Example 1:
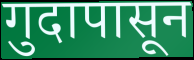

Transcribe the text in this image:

गुदापासून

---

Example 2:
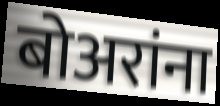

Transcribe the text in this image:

बोअरांना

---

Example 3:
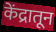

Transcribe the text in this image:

केंद्रातून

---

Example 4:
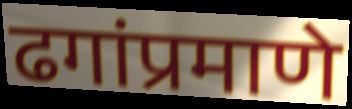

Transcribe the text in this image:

ढगांप्रमाणे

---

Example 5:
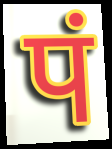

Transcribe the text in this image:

पं